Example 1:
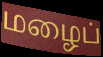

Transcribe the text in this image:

மழைப்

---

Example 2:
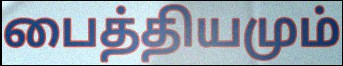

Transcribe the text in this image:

பைத்தியமும்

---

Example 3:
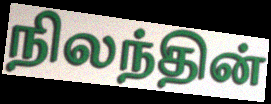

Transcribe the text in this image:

நிலந்தின்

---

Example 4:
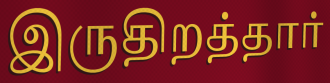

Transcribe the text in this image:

இருதிறத்தார்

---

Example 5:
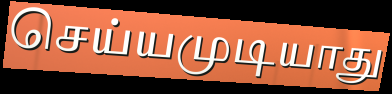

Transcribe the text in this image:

செய்யமுடியாது